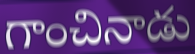
గాంచినాడు